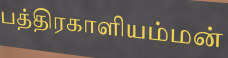
பத்திரகாளியம்மன்